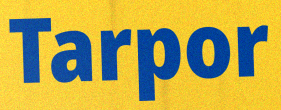
Tarpor